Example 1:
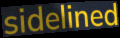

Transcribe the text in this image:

sidelined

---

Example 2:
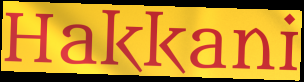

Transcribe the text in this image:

Hakkani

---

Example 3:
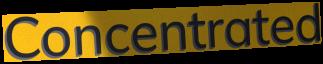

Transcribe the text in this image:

Concentrated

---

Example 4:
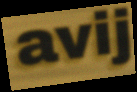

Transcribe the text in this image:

avij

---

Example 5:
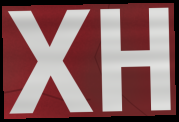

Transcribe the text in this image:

XH